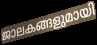
ജാലകങ്ങളുമായി